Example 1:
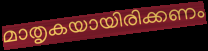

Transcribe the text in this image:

മാതൃകയായിരിക്കണം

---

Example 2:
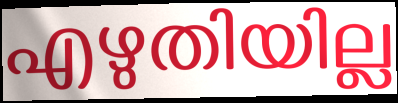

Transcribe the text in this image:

എഴുതിയില്ല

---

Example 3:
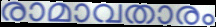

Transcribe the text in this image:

രാമാവതാരം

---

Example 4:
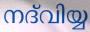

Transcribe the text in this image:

നദ്‌വിയ്യ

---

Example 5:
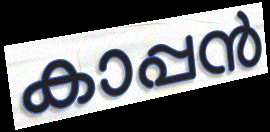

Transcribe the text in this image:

കാപ്പൻ